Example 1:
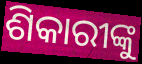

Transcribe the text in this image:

ଶିକାରୀଙ୍କୁ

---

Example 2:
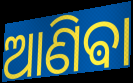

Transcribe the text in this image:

ଆଣିଵା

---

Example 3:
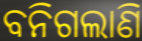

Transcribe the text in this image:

ବନିଗଲାଣି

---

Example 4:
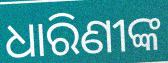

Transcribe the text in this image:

ଧାରିଣୀଙ୍କ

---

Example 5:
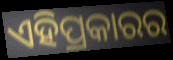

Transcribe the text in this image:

ଏହିପ୍ରକାରର